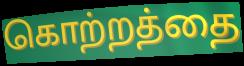
கொற்றத்தை